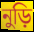
নুড়ি